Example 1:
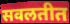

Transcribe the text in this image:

सवलतीत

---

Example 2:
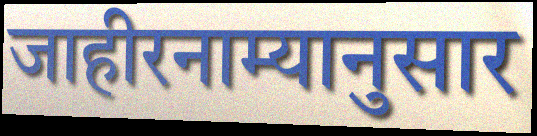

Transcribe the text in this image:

जाहीरनाम्यानुसार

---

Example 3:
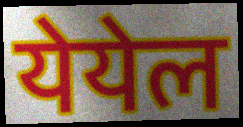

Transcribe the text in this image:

येयेल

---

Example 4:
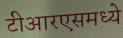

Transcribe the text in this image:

टीआरएसमध्ये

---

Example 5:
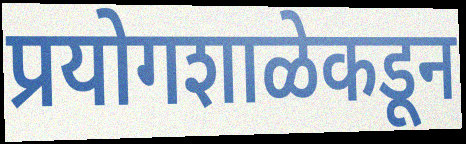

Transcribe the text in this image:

प्रयोगशाळेकडून